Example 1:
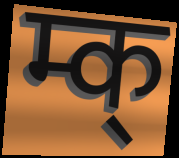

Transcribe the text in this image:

म्क्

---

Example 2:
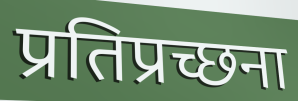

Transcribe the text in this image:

प्रतिप्रच्छना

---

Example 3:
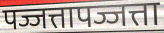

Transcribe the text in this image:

पज्जत्तापज्जत्ता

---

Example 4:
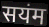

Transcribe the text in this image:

सयंम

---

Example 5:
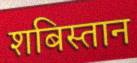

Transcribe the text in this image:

शबिस्तान